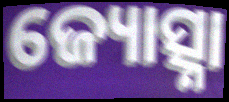
ଜ୍ୟୋତ୍ସ୍ନା